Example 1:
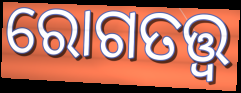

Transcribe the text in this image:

ରୋଗତତ୍ତ୍ୱ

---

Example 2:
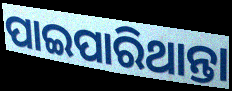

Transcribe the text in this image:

ପାଇପାରିଥାନ୍ତା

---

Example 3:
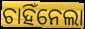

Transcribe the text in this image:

ଚାହିଁନେଲା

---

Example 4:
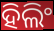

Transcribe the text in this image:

ହିଲିଂ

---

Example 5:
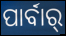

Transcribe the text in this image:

ପାର୍ବାର୍